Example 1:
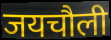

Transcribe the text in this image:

जयचौली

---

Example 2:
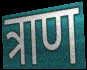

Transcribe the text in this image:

त्राण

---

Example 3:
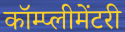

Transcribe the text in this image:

कॉम्प्लीमेंटरी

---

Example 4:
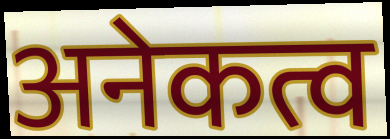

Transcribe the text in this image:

अनेकत्व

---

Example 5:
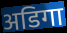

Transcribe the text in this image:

अडिगा